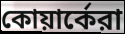
কোয়ার্কেরা